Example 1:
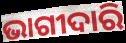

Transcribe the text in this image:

ଭାଗୀଦାରି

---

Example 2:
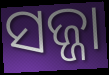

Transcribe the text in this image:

ସଜ୍ଜା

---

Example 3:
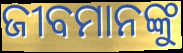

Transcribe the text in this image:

ଜୀବମାନଙ୍କୁ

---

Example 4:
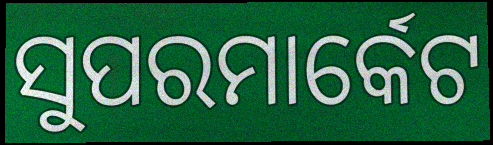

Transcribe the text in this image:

ସୁପରମାର୍କେଟ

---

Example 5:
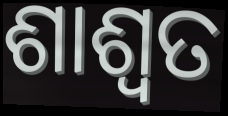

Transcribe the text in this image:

ଶାଶ୍ଵତ